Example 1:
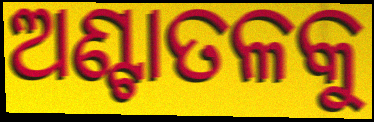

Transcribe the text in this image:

ଅଣ୍ଟାତଳକୁ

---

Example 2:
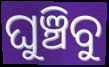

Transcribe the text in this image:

ଘୁଞ୍ଚିବୁ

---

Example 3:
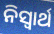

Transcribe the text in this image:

ନିସ୍ୱାର୍ଥ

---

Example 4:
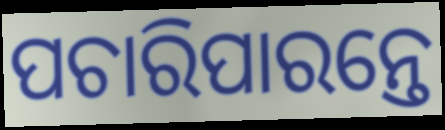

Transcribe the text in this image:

ପଚାରିପାରନ୍ତେ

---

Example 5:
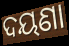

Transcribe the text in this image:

ଦୟଣା